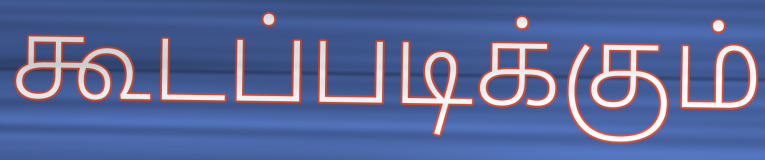
கூடப்படிக்கும்